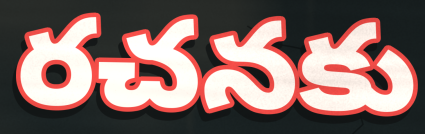
రచనకు